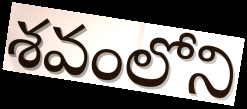
శవంలోని